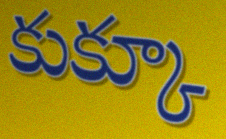
కుక్కూ